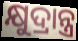
କ୍ଷୁଦ୍ରାନ୍ତ୍ର